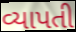
વ્યાપતી